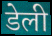
डेली